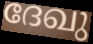
ദേഖു